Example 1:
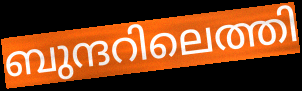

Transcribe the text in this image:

ബുന്ദറിലെത്തി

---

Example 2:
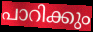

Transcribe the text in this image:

പാറിക്കും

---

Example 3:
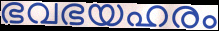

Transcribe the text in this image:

ഭവഭയഹരം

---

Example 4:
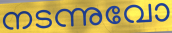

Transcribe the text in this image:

നടന്നുവോ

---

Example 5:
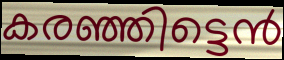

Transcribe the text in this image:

കരഞ്ഞിട്ടെൻ